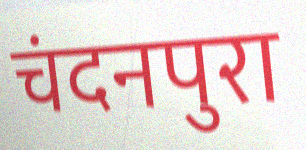
चंदनपुरा